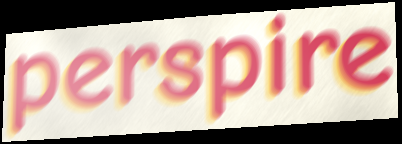
perspire